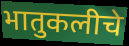
भातुकलीचे